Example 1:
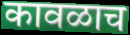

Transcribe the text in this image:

कावळाच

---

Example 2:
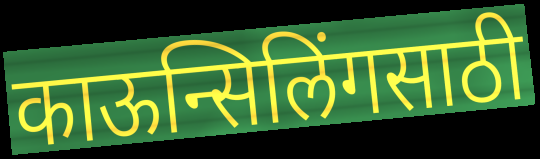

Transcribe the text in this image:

काऊन्सिलिंगसाठी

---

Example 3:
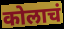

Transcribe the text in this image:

कोलाचं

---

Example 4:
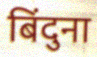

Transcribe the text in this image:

बिंदुना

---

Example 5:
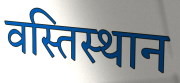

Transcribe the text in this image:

वस्तिस्थान